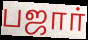
பஜார்